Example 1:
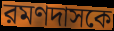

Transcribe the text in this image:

রমণদাসকে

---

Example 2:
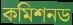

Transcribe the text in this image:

কমিশনড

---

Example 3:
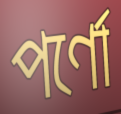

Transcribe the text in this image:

পর্ণো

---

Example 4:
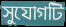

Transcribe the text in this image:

সুযোগটি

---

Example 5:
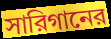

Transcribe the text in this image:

সারিগানের